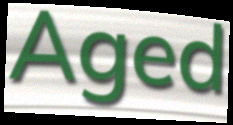
Aged